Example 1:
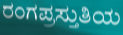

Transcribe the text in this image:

ರಂಗಪ್ರಸ್ತುತಿಯ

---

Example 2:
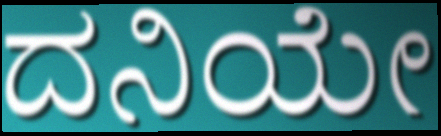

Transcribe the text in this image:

ದನಿಯೇ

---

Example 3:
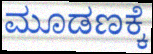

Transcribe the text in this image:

ಮೂಡಣಕ್ಕೆ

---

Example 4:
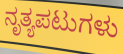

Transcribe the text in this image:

ನೃತ್ಯಪಟುಗಳು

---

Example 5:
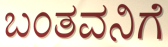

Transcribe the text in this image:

ಬಂತವನಿಗೆ